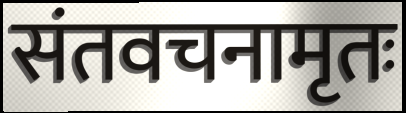
संतवचनामृतः